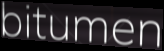
bitumen